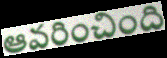
ఆవరించింది